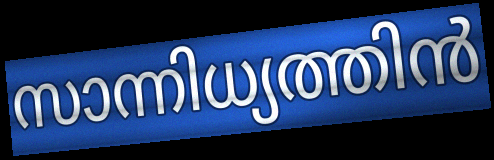
സാന്നിധ്യത്തിൻ